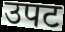
उपट